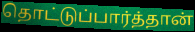
தொட்டுப்பார்த்தான்